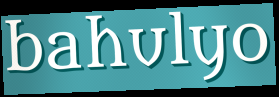
bahulyo